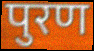
पुरण